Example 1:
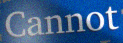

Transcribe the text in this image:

Cannot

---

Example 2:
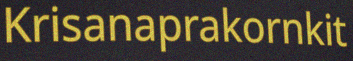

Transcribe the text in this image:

Krisanaprakornkit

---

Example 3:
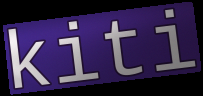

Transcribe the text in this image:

kiti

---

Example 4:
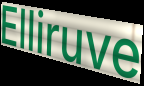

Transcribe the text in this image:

Elliruve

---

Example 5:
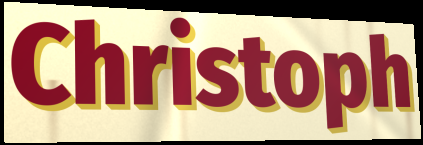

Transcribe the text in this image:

Christoph